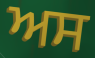
ਅਸ